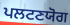
ਪਲਟਣਯੋਗ